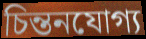
চিন্তনযোগ্য